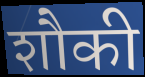
शौकी